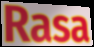
Rasa